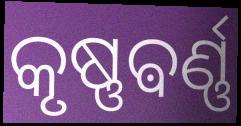
କୃଷ୍ଣଵର୍ଣ୍ଣ